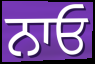
ਨਾਓ